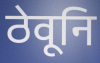
ठेवूनि